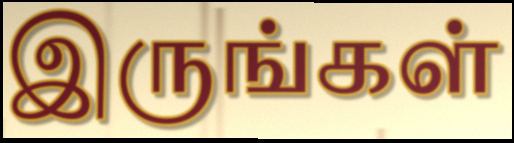
இருங்கள்